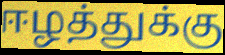
ஈழத்துக்கு